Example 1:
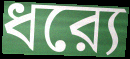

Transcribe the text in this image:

ধর‍্যে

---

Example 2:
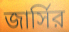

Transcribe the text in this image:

জার্সির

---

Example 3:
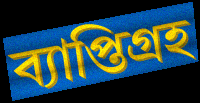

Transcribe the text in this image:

ব্যাপ্তিগ্রহ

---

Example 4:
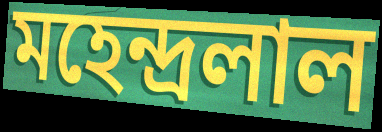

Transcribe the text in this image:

মহেন্দ্রলাল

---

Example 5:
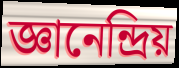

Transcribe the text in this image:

জ্ঞানেন্দ্রিয়